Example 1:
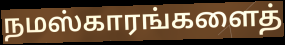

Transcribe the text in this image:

நமஸ்காரங்களைத்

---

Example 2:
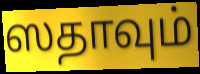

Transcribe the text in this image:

ஸதாவும்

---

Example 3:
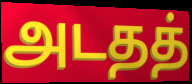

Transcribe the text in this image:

அடதத்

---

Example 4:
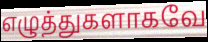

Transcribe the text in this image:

எழுத்துகளாகவே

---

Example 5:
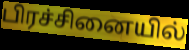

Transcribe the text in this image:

பிரச்சினையில்